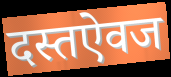
दस्तऐवज